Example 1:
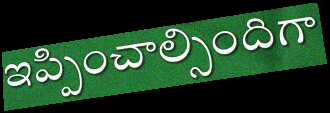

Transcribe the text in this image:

ఇప్పించాల్సిందిగా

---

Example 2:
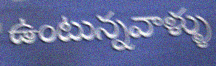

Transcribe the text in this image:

ఉంటున్నవాళ్ళు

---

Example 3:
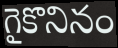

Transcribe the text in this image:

గైకొనినం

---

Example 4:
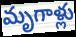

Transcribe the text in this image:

మృగాళ్లు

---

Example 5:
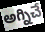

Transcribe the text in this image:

అగ్నిచే